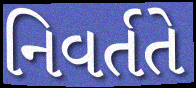
નિવર્તતે